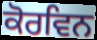
ਕੋਰਵਿਨ